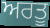
ਅਰਤੂ